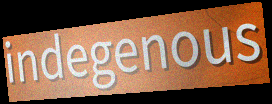
indegenous